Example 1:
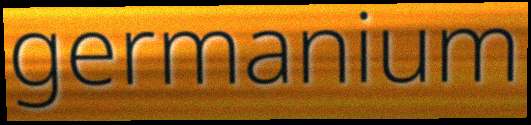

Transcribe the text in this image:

germanium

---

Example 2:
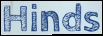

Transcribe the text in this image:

Hinds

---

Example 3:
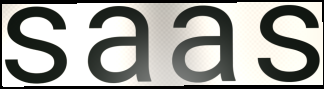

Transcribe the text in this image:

saas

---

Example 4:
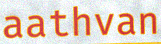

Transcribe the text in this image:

aathvan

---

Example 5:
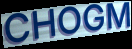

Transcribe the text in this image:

CHOGM